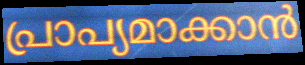
പ്രാപ്യമാക്കാൻ